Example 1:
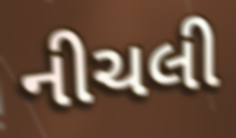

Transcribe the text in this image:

નીચલી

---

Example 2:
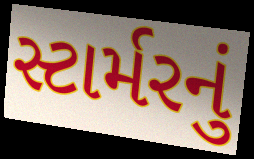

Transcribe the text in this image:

સ્ટાર્મરનું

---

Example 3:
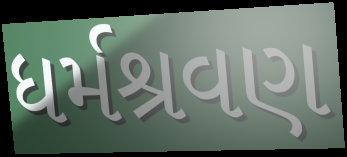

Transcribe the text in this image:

ધર્મશ્રવણ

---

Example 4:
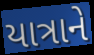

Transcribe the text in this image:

યાત્રાને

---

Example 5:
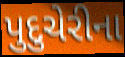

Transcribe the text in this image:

પુદુચેરીના